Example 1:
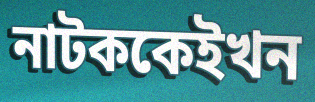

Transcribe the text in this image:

নাটককেইখন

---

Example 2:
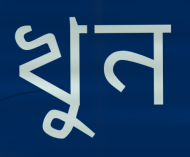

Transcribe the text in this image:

খুন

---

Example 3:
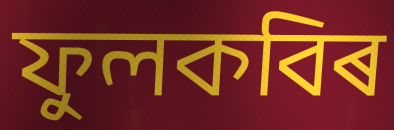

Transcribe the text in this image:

ফুলকবিৰ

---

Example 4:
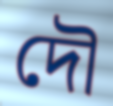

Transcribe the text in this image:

দৌ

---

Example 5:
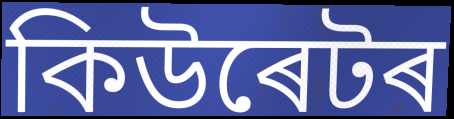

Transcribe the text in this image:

কিউৰেটৰ